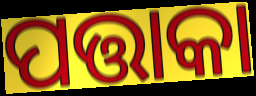
ପତ୍ତାକା